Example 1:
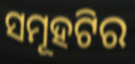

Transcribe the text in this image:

ସମୂହଟିର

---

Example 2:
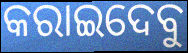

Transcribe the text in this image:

କରାଇଦେବୁ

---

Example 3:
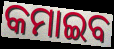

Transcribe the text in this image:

କମାଇବ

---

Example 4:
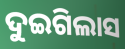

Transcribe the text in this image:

ଦୁଇଗିଲାସ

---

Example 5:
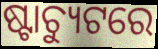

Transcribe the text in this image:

ଷ୍ଟାଚ୍ୟୁଟରେ